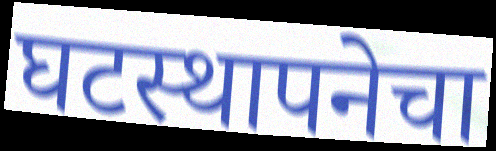
घटस्थापनेचा